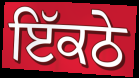
ਇੱਕਠੇ